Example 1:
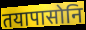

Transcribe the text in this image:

तयापासोनि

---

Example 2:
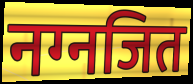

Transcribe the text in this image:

नग्नजित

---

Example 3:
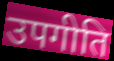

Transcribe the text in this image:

उपगीति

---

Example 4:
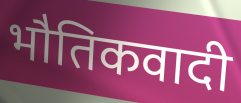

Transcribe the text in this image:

भौतिकवादी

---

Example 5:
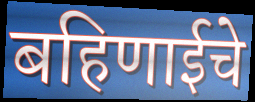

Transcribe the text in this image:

बहिणाईचे